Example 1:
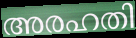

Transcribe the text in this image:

അരഹതി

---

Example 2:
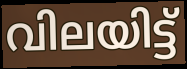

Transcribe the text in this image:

വിലയിട്ട്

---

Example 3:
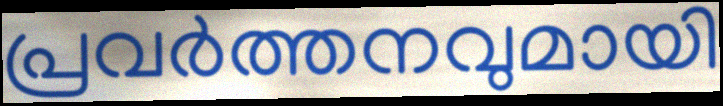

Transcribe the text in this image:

പ്രവർത്തനവുമായി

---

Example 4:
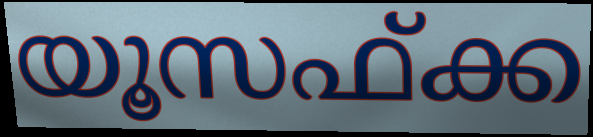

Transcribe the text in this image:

യൂസഫ്ക്ക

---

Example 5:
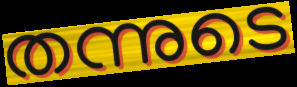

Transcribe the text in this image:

തന്നുടെ